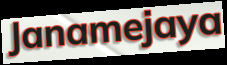
Janamejaya